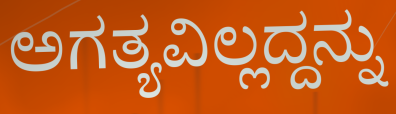
ಅಗತ್ಯವಿಲ್ಲದ್ದನ್ನು